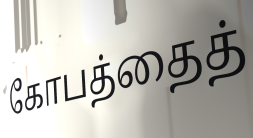
கோபத்தைத்